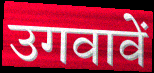
उगवावें